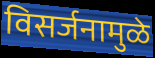
विसर्जनामुळे